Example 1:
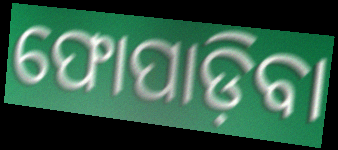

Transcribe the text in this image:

ଫୋପାଡ଼ିବା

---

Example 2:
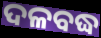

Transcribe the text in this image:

ଦଳବଦ୍ଧ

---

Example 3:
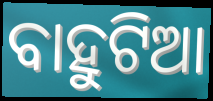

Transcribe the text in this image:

ବାହୁଟିଆ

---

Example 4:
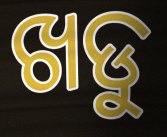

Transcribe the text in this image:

ଖଡୁ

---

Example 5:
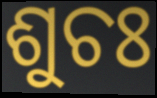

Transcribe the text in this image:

ଶୁଚଃ